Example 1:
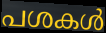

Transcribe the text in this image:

പശകൾ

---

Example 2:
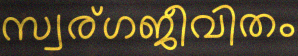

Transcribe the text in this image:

സ്വര്ഗജീവിതം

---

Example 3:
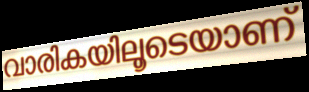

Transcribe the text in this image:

വാരികയിലൂടെയാണ്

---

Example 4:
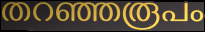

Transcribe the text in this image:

തറഞ്ഞരൂപം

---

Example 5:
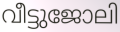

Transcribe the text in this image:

വീട്ടുജോലി